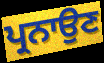
ਪ੍ਰਨਾਉਣ